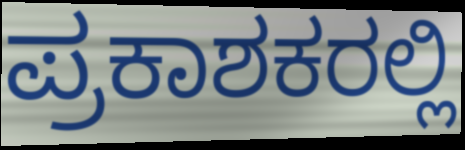
ಪ್ರಕಾಶಕರಲ್ಲಿ